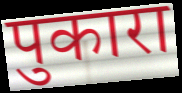
पुकारा